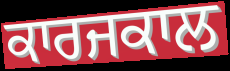
ਕਾਰਜਕਾਲ